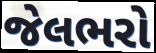
જેલભરો